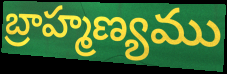
బ్రాహ్మణ్యము